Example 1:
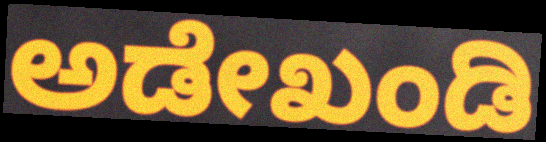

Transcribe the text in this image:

ಅಡೇಖಂಡಿ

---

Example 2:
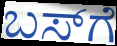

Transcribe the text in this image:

ಬಸ್‍ಗೆ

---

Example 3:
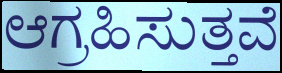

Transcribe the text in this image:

ಆಗ್ರಹಿಸುತ್ತವೆ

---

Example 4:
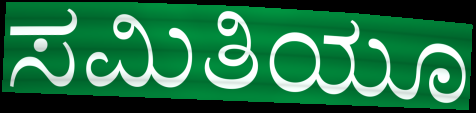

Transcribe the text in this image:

ಸಮಿತಿಯೂ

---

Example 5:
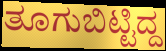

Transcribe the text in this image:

ತೂಗುಬಿಟ್ಟಿದ್ದ